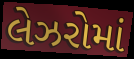
લેઝરોમાં